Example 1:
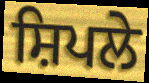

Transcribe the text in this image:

ਸ਼ਿਪਲੇ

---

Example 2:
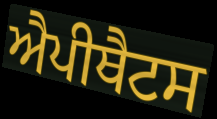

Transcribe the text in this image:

ਐਪੀਥੈਟਸ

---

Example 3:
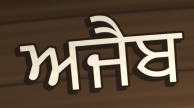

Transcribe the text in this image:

ਅਜੈਬ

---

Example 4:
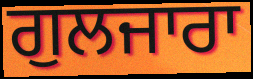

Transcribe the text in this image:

ਗੁਲਜਾਰਾ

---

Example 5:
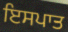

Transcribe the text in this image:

ਇਸਪਾਤ